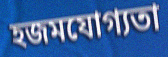
হজমযোগ্যতা